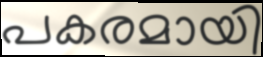
പകരമായി